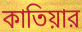
কাতিয়ার